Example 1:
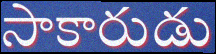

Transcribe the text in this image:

సాకారుడు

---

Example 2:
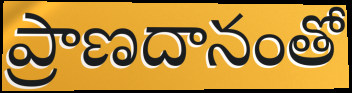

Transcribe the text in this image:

ప్రాణదానంతో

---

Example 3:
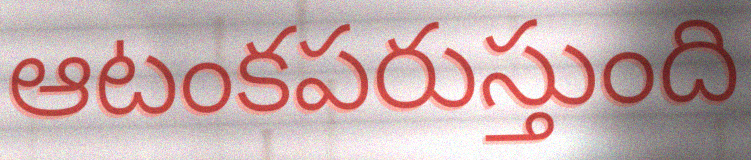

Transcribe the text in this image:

ఆటంకపరుస్తుంది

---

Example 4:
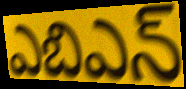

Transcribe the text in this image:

ఎబిఎన్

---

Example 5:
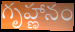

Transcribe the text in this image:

గృహ్ణానం